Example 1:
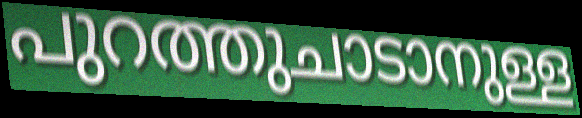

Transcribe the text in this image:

പുറത്തുചാടാനുള്ള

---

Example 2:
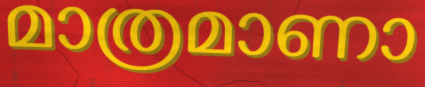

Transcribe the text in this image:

മാത്രമാണാ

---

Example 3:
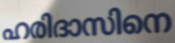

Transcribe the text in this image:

ഹരിദാസിനെ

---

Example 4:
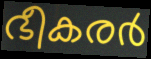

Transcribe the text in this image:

ഭീകരർ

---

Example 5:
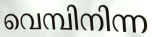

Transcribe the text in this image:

വെമ്പിനിന്ന